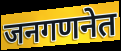
जनगणनेत